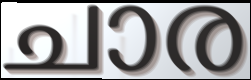
ചാര